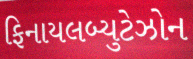
ફિનાયલબ્યુટેઝોન